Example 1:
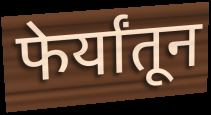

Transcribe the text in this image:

फेर्यांतून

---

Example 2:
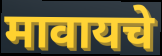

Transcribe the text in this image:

मावायचे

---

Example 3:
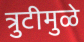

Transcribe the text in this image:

त्रुटीमुळे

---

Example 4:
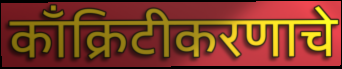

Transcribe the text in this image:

काँक्रिटीकरणाचे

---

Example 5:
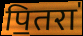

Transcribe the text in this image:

पि॒तरा॑